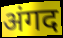
अंगद